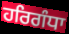
ਹਰਿਗੰਧਾ